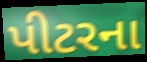
પીટરના